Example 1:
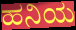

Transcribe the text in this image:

ಹನಿಯ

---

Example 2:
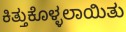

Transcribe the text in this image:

ಕಿತ್ತುಕೊಳ್ಳಲಾಯಿತು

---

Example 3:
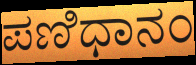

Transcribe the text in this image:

ಪಣಿಧಾನಂ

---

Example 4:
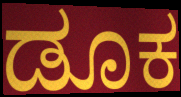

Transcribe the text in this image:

ಡೂಕ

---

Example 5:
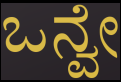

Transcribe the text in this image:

ಒನ್ವೇ